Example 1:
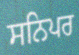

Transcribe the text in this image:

ਸਨਿਪਰ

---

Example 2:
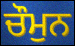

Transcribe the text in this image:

ਚੌਮੁਨ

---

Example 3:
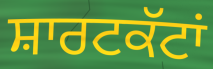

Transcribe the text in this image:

ਸ਼ਾਰਟਕੱਟਾਂ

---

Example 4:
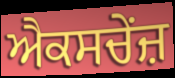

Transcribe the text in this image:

ਐਕਸਚੇਂਜ਼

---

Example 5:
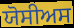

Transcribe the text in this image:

ਯੋਸੀਅਸ